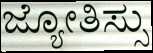
ಜ್ಯೋತಿಸ್ಸು